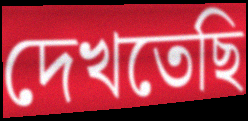
দেখতেছি